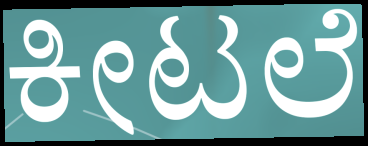
ಕೀಟಲೆ